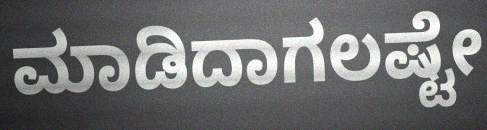
ಮಾಡಿದಾಗಲಷ್ಟೇ